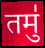
तमु॑